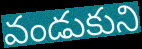
వండుకుని